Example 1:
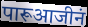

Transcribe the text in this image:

पारूआजीनं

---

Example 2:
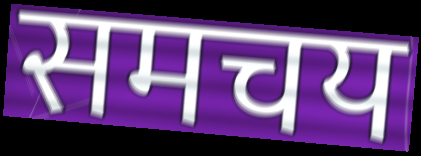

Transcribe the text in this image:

समचय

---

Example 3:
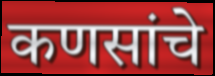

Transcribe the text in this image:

कणसांचे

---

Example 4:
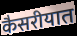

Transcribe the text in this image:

कैसरीयात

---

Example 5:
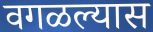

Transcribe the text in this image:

वगळल्यास